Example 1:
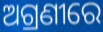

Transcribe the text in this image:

ଅଗ୍ରଣୀରେ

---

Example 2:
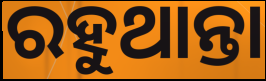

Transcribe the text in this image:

ରହୁଥାନ୍ତା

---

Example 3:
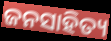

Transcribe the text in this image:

ଜନସାହିତ୍ୟ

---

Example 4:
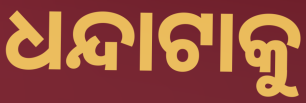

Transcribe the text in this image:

ଧନ୍ଦାଟାକୁ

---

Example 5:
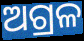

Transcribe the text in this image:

ଅଗ୍ରଳ